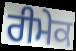
ਰੀਮੇਕ